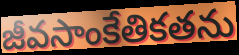
జీవసాంకేతికతను